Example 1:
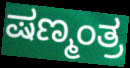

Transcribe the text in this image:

ಷಣ್ಮಂತ್ರ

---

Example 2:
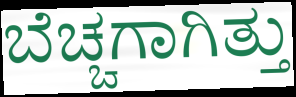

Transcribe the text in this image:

ಬೆಚ್ಚಗಾಗಿತ್ತು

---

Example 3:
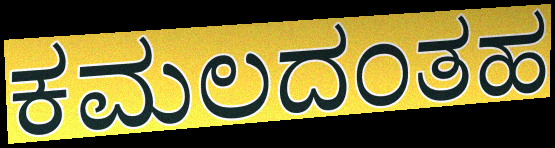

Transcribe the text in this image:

ಕಮಲದಂತಹ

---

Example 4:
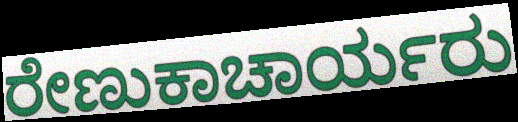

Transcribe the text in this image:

ರೇಣುಕಾಚಾರ್ಯರು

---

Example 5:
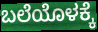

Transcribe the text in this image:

ಬಲೆಯೊಳಕ್ಕೆ